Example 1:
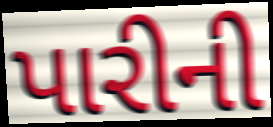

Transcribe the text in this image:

પારીની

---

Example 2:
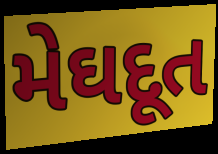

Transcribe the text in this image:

મેઘદૂત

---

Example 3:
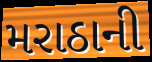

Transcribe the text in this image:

મરાઠાની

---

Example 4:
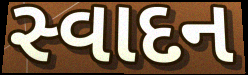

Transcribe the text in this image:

સ્વાદન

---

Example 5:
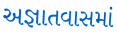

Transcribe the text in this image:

અજ્ઞાતવાસમાં